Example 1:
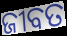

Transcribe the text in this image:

ଜୀବତ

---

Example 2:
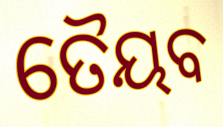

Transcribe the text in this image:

ତୈୟବ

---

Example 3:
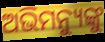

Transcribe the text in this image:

ଅଭିମନ୍ୟୁଙ୍କୁ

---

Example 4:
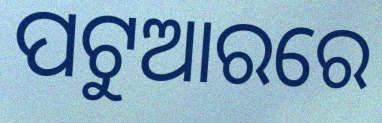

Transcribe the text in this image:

ପଟୁଆରରେ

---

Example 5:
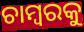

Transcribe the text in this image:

ଚାମ୍ବରକୁ